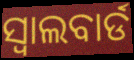
ସ୍ୱାଲବାର୍ଡ